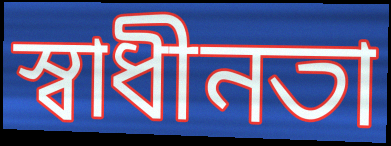
স্বাধীনতা